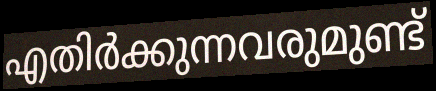
എതിർക്കുന്നവരുമുണ്ട്